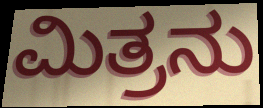
ಮಿತ್ರನು